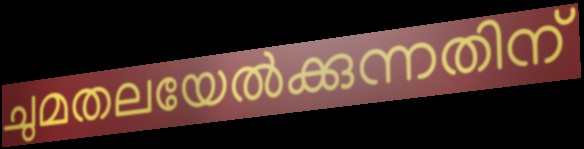
ചുമതലയേൽക്കുന്നതിന്